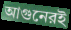
আগুনেরই